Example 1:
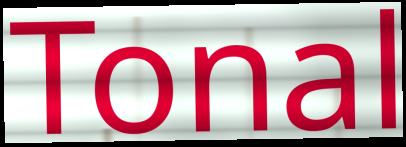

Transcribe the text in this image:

Tonal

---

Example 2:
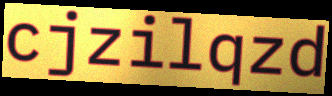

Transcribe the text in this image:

cjzilqzd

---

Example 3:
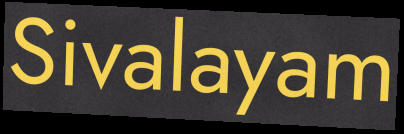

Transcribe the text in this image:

Sivalayam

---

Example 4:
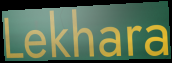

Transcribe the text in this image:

Lekhara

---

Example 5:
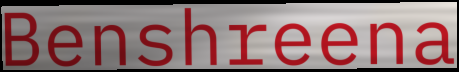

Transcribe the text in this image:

Benshreena